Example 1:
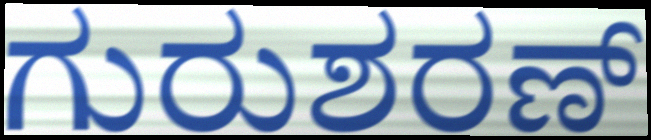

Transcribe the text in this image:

ಗುರುಶರಣ್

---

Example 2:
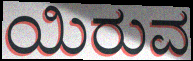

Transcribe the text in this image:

ಯಿರುವ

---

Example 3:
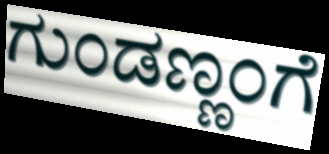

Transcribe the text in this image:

ಗುಂಡಣ್ಣಂಗೆ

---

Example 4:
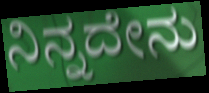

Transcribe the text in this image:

ನಿನ್ನದೇನು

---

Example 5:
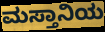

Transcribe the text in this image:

ಮಸ್ತಾನಿಯ